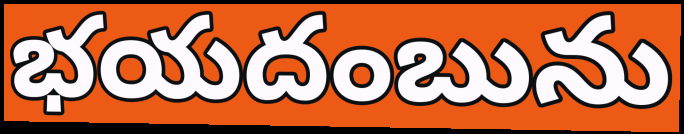
భయదంబును